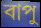
বাপু